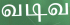
வடிவ